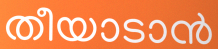
തീയാടാൻ